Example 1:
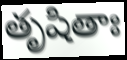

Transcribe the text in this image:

తృషితాః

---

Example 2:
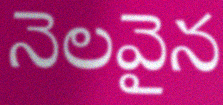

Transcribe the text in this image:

నెలవైన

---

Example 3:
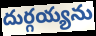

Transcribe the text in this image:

దుర్గయ్యను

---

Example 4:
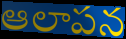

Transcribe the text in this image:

ఆలాపన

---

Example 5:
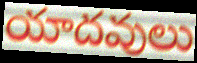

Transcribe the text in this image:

యాదవులు